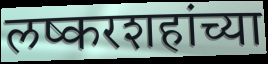
लष्करशहांच्या